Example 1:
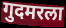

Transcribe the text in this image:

गुदमरला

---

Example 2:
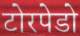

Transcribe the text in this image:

टोरपेडो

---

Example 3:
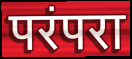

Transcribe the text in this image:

परंपरा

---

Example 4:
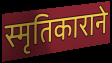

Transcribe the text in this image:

स्मृतिकाराने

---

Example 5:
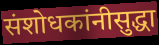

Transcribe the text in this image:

संशोधकांनीसुद्धा